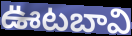
ఊటబావి